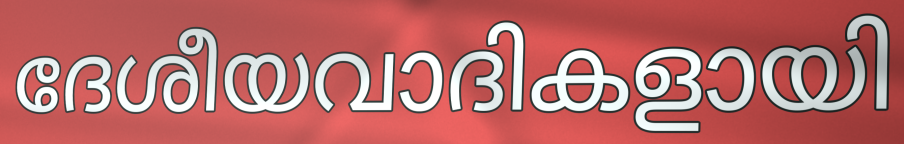
ദേശീയവാദികളായി